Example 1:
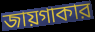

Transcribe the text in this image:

জায়গাকার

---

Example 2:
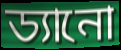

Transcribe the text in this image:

ড্যানো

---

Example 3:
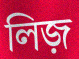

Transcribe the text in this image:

লিজ়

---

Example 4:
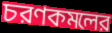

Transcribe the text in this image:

চরণকমলের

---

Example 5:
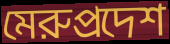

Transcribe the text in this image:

মেরুপ্রদেশ